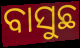
ବାସୁଛ